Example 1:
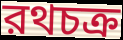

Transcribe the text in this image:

রথচক্র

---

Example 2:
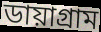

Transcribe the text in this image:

ডায়াগ্রাম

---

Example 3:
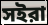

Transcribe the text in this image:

সইরা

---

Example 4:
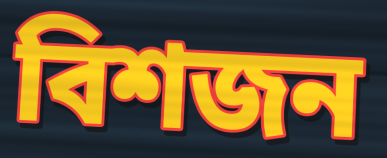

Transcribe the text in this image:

বিশজন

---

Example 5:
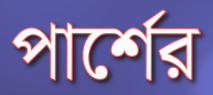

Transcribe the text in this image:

পার্শের